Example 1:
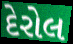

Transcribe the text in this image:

દેરોલ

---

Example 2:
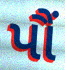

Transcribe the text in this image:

પૌં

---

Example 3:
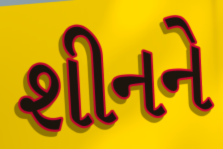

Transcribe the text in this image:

શીનને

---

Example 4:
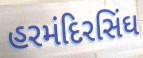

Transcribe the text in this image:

હરમંદિરસિંઘ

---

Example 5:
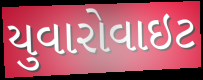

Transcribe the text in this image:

યુવારોવાઇટ